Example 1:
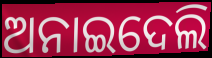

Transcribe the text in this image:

ଅନାଇଦେଲି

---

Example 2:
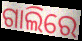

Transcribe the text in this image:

ଗାଲିରେ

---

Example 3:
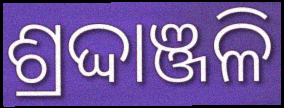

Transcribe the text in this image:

ଶ୍ରଦ୍ଦାଞ୍ଜଳି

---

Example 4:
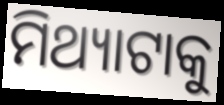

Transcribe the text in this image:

ମିଥ୍ୟାଟାକୁ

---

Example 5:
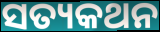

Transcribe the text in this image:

ସତ୍ୟକଥନ